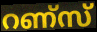
റണ്സ്